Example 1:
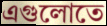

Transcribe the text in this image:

এগুলোতে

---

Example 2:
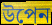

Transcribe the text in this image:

উপেন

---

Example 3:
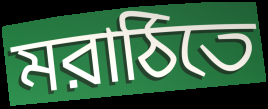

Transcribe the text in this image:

মরাঠিতে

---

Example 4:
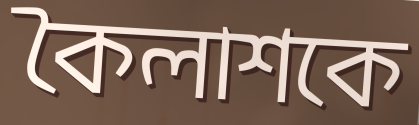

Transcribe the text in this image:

কৈলাশকে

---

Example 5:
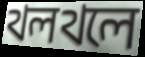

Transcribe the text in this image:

থলথলে